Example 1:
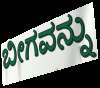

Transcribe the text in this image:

ಬೀಗವನ್ನು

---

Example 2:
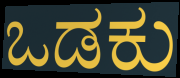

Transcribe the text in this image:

ಒಡಕು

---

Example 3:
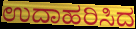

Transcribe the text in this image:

ಉದಾಹರಿಸಿದ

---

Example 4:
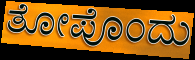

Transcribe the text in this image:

ತೋಪೊಂದು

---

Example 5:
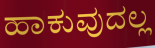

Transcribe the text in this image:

ಹಾಕುವುದಲ್ಲ